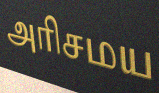
அரிசமய